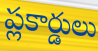
ప్లకార్డులు